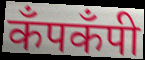
कँपकँपी